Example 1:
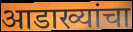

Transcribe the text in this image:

आडाख्यांचा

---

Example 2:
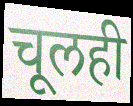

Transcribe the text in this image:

चूलही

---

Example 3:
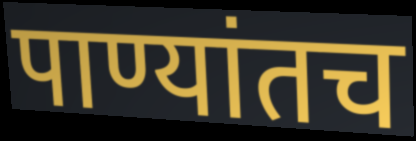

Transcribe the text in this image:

पाण्यांतच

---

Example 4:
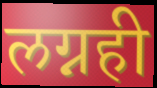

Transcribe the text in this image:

लग्नही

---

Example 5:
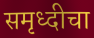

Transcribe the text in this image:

समृध्दीचा